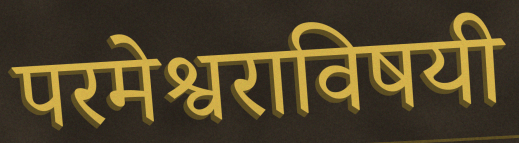
परमेश्वराविषयी